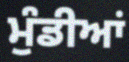
ਮੁੰਡੀਆਂ